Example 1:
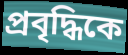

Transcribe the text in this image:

প্রবৃদ্ধিকে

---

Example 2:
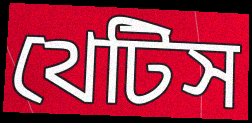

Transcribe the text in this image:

থেটিস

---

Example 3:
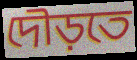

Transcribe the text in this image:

দৌড়তে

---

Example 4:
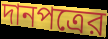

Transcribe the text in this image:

দানপত্রের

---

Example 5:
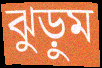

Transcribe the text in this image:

ঝুড়ুম